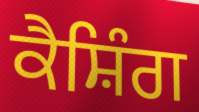
ਕੈਸ਼ਿੰਗ